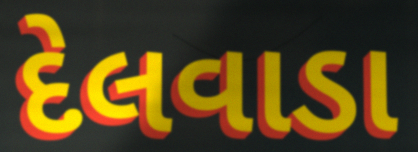
દેલવાડા